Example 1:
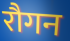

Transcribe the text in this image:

रौगन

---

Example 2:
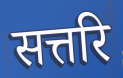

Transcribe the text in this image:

सत्तरि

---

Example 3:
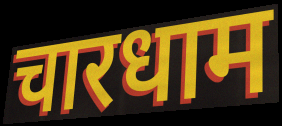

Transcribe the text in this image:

चारधाम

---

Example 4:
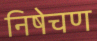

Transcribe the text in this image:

निषेचण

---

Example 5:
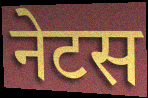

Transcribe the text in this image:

नेटस